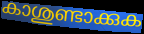
കാശുണ്ടാക്കുക